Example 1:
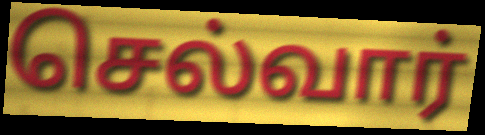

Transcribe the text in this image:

செல்வார்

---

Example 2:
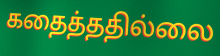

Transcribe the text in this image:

கதைத்ததில்லை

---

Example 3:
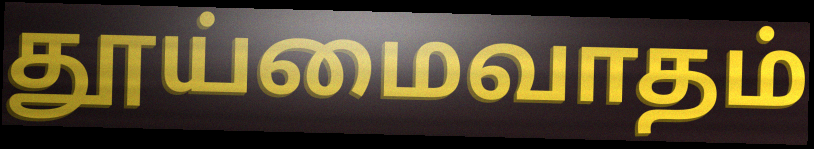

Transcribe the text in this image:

தூய்மைவாதம்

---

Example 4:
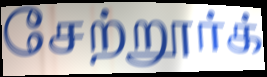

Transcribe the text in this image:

சேற்றூர்க்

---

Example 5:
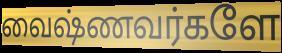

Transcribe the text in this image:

வைஷ்ணவர்களே